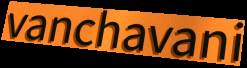
vanchavani